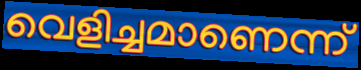
വെളിച്ചമാണെന്ന്